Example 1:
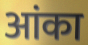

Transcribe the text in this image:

आंका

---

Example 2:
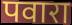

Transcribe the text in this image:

पवारा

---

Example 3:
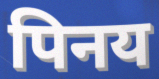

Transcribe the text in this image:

पिनय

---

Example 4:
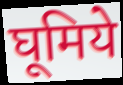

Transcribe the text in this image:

घूमिये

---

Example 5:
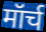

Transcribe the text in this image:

मॉर्च